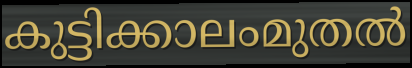
കുട്ടിക്കാലംമുതൽ